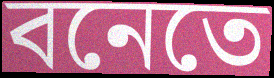
বনেতে